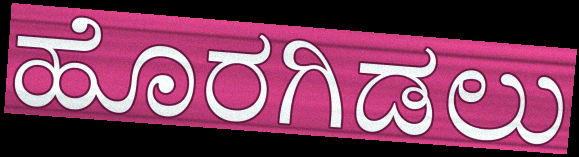
ಹೊರಗಿಡಲು